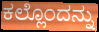
ಕಲ್ಲೊಂದನ್ನು